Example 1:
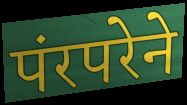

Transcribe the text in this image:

पंरपरेने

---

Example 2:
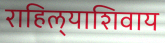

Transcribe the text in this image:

राहिल्याशिवाय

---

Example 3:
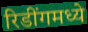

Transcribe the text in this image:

रिडींगमध्ये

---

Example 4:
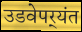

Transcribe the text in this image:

उडवेपर्यंत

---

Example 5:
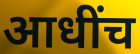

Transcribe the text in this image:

आधींच